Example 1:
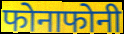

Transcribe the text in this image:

फोनाफोनी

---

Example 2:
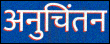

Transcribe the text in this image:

अनुचिंतन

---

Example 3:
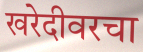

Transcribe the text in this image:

खरेदीवरचा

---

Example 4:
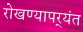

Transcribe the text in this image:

रोखण्यापर्यंत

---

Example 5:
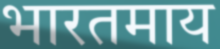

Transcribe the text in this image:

भारतमाय